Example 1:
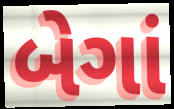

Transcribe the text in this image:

બેગાં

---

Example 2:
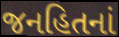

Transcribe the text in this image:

જનહિતનાં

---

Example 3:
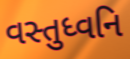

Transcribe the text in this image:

વસ્તુધ્વનિ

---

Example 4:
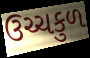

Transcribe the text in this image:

ઉચ્ચકુળ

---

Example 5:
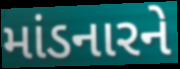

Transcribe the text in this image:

માંડનારને